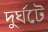
দুর্ঘটে